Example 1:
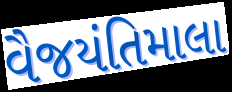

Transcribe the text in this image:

વૈજયંતિમાલા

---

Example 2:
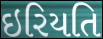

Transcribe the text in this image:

ઇરિયતિ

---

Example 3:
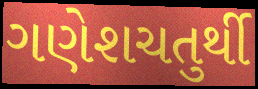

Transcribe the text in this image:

ગણેશચતુર્થી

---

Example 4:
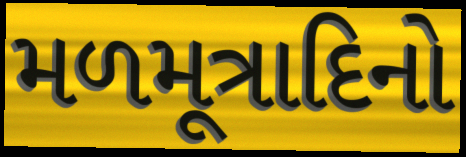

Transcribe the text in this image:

મળમૂત્રાદિનો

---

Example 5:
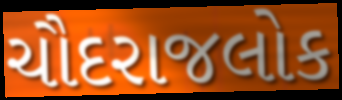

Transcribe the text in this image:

ચૌદરાજલોક